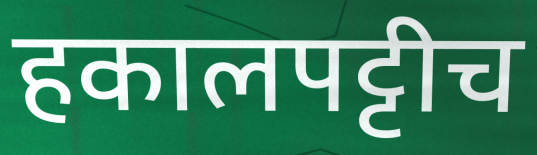
हकालपट्टीच